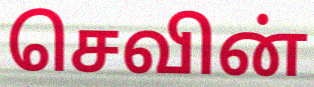
செவின்